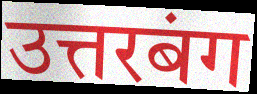
उत्तरबंग